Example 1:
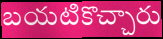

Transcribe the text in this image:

బయటికొచ్చారు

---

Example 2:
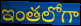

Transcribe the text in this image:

ఇంతలోగా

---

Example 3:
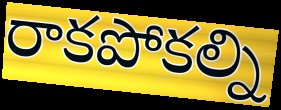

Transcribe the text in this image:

రాకపోకల్ని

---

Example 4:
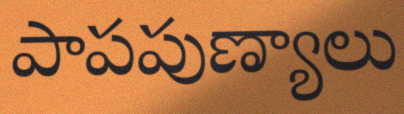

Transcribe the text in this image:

పాపపుణ్యాలు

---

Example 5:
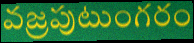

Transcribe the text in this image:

వజ్రపుటుంగరం